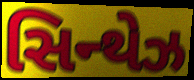
સિન્થેઝ